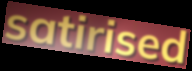
satirised